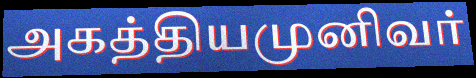
அகத்தியமுனிவர்